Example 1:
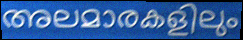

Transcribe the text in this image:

അലമാരകളിലും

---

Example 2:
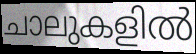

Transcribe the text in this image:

ചാലുകളിൽ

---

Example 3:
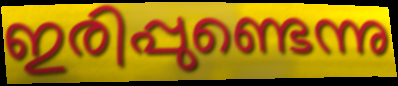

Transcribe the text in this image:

ഇരിപ്പുണ്ടെന്നു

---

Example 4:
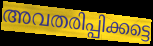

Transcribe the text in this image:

അവതരിപ്പിക്കട്ടെ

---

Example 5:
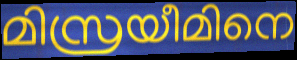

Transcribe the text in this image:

മിസ്രയീമിനെ